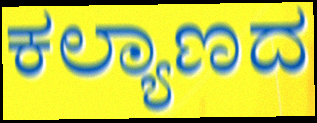
ಕಲ್ಯಾಣದ